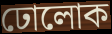
ঢোলোক